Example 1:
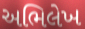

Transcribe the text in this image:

અભિલેખ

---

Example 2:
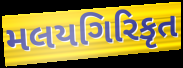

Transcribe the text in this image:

મલયગિરિકૃત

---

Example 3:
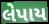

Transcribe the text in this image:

લેપાય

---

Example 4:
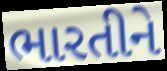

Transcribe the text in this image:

ભારતીને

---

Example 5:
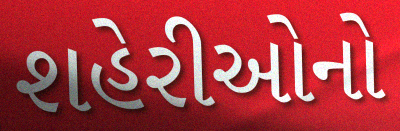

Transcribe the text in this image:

શહેરીઓનો